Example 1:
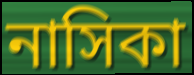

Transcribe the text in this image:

নাসিকা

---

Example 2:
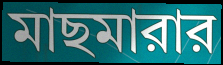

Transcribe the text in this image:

মাছমারার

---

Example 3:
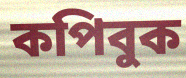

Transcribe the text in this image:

কপিবুক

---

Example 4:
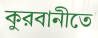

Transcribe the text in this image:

কুরবানীতে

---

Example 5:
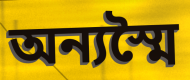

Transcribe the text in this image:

অন্যস্মৈ